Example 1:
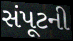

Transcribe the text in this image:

સંપૂટની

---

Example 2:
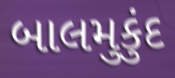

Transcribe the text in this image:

બાલમુકુંદ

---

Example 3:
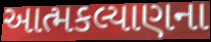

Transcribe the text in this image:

આત્મકલ્યાણના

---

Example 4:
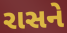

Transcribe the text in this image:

રાસને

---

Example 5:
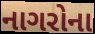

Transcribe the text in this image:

નાગરોના